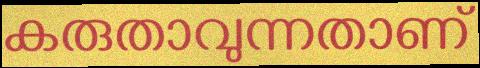
കരുതാവുന്നതാണ്